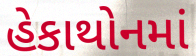
હેકાથોનમાં